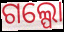
ଗଲ୍ପୋ